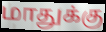
மாதுக்கு